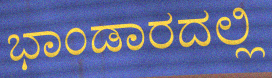
ಭಾಂಡಾರದಲ್ಲಿ